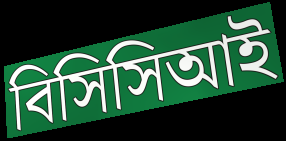
বিসিসিআই